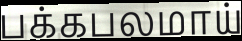
பக்கபலமாய்